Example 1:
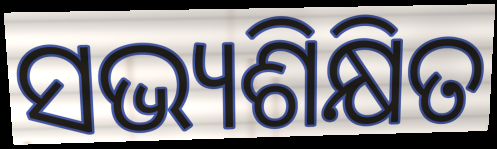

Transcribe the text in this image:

ସଭ୍ୟଶିକ୍ଷିତ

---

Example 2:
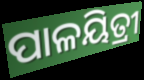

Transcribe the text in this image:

ପାଳୟିତ୍ରୀ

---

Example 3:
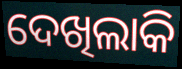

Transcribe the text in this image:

ଦେଖିଲାକି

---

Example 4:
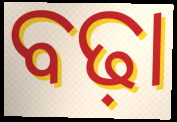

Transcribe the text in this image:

ବଢ଼ା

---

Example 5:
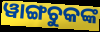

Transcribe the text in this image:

ୱାଙ୍ଗଚୁକଙ୍କ